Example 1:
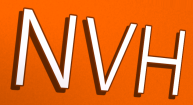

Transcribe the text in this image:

NVH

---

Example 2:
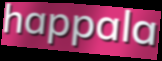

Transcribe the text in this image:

happala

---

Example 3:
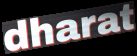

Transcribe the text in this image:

dharat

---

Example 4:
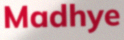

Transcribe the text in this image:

Madhye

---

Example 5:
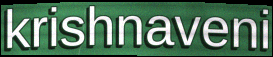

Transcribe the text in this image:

krishnaveni